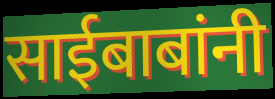
साईबाबांनी